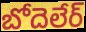
బోదెలేర్